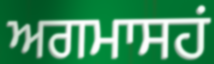
ਅਗਮਾਸਹਂ